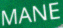
MANE